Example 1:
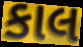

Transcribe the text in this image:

કાલ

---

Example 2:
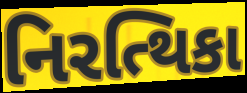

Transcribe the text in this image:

નિરત્થિકા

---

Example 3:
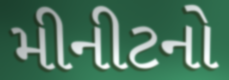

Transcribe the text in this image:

મીનીટનો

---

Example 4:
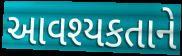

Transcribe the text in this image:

આવશ્યકતાને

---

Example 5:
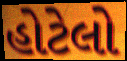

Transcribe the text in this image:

હોટેલો